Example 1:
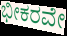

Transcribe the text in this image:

ಭೀಕರವೇ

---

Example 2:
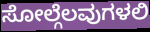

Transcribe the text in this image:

ಸೋಲ್ಗೆಲವುಗಳಲಿ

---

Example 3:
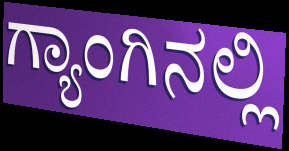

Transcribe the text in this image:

ಗ್ಯಾಂಗಿನಲ್ಲಿ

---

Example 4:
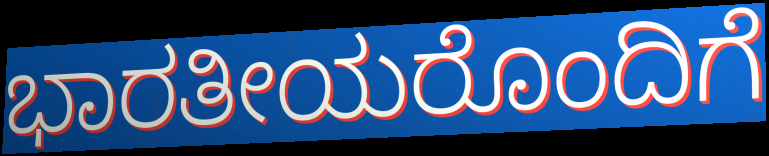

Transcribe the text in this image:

ಭಾರತೀಯರೊಂದಿಗೆ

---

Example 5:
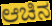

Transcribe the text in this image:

ಆಚಿನ